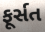
ફૂર્સત